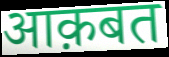
आक़बत